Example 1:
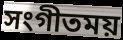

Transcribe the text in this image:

সংগীতময়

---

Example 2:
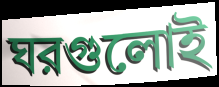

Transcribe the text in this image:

ঘরগুলোই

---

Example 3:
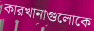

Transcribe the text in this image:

কারখানাগুলোকে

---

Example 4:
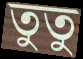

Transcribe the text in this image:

তুতু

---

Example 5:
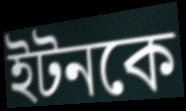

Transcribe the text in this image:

ইটনকে